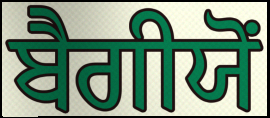
ਬੈਗੀਯੋਂ